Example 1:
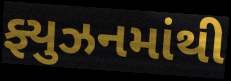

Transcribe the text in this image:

ફ્યુઝનમાંથી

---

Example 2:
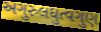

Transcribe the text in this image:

અગુરુલઘુત્વગુણ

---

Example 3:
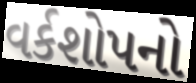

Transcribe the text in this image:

વર્કશોપનો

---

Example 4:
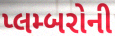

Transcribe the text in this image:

પ્લમ્બરોની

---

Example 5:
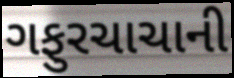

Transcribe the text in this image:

ગફુરચાચાની